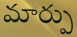
మార్పు